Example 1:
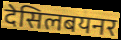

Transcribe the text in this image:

देसिलबयनर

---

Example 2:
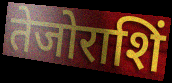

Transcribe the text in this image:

तेजोराशिं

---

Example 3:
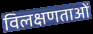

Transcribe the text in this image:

विलक्षणताओं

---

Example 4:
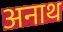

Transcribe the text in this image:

अनाथ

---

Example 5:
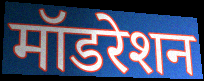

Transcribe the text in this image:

मॉडरेशन